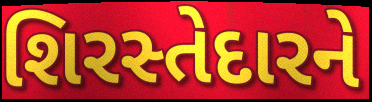
શિરસ્તેદારને